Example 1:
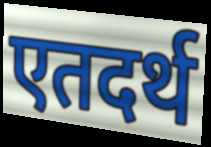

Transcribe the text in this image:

एतदर्थ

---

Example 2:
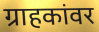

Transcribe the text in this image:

ग्राहकांवर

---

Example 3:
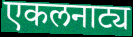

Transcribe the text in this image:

एकलनाट्य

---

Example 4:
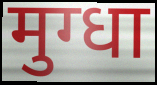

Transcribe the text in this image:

मुग्धा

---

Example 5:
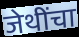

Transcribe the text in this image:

जेथींचा